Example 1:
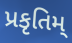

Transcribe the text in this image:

પ્રકૃતિમ્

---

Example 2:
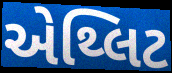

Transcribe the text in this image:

એથ્લિટ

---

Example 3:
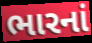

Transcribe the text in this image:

ભારનાં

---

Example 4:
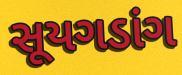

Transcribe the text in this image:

સૂયગડાંગ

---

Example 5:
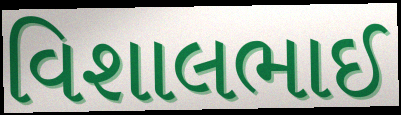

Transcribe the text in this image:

વિશાલભાઈ